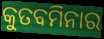
କୁତବମିନାର